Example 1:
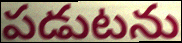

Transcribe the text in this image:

పడుటను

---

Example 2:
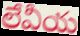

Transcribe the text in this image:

లేవీయ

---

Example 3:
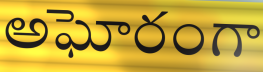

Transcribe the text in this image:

అఘోరంగా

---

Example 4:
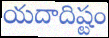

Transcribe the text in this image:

యదాదిష్టం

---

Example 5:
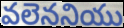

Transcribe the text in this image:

వలెననియు